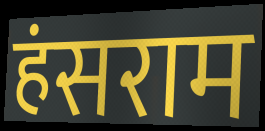
हंसराम